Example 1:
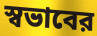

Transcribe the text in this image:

স্বভাবের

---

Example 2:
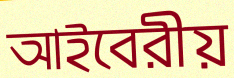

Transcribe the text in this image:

আইবেরীয়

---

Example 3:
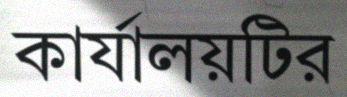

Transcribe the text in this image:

কার্যালয়টির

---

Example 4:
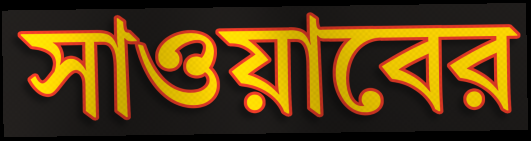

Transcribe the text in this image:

সাওয়াবের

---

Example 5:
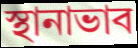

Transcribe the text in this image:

স্থানাভাব